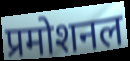
प्रमोशनल